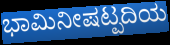
ಭಾಮಿನೀಷಟ್ಪದಿಯ